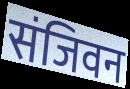
संजिवन